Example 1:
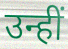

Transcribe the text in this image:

उन्हीं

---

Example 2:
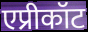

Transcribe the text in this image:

एप्रीकॉट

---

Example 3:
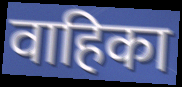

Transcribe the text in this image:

वाहिका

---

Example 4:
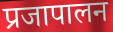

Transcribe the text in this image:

प्रजापालन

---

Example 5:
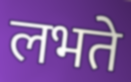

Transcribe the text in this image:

लभते